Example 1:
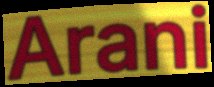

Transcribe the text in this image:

Arani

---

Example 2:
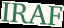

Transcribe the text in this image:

IRAF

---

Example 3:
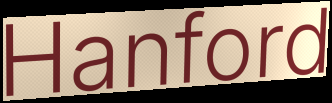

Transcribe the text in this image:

Hanford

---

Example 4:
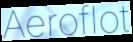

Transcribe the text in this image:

Aeroflot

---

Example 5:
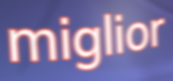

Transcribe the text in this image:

miglior